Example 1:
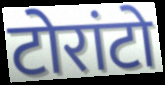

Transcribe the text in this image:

टोरांटो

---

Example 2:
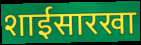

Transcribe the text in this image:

शाईसारखा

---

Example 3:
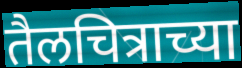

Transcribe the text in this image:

तैलचित्राच्या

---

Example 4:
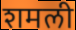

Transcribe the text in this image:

शमली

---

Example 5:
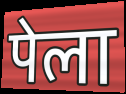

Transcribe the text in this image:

पेला